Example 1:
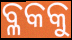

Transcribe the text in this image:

ବ୍ଳକକୁ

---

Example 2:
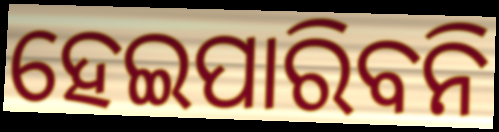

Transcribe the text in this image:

ହେଇପାରିବନି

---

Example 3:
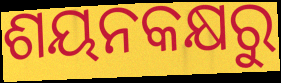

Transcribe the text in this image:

ଶୟନକକ୍ଷରୁ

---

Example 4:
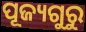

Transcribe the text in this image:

ପୂଜ୍ୟଗୁରୁ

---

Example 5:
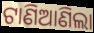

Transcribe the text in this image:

ଟାଣିଆଣିଲା